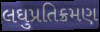
લઘુપ્રતિક્રમણ